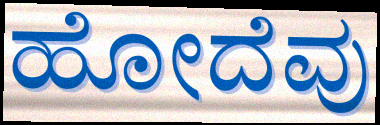
ಹೋದೆವು